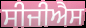
ਸੀਜੀਐਸ